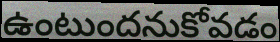
ఉంటుందనుకోవడం